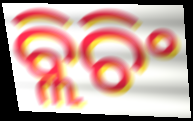
ବ୍ଲିଚିଂ